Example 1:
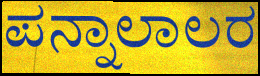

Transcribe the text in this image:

ಪನ್ನಾಲಾಲರ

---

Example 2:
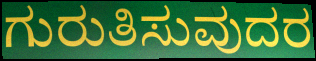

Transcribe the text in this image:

ಗುರುತಿಸುವುದರ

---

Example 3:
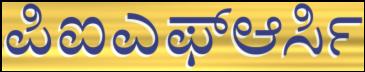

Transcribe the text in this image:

ಪಿಐಎಫ್ಆರ್ಸಿ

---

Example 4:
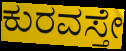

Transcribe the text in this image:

ಕುರವಸ್ತೇ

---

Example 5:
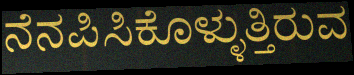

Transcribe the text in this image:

ನೆನಪಿಸಿಕೊಳ್ಳುತ್ತಿರುವ